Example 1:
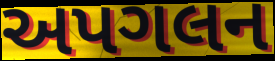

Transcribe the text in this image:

અપગલન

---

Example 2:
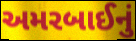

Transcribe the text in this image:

અમરબાઈનું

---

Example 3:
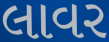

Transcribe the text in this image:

લાવર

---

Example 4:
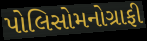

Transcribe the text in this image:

પોલિસોમનોગ્રાફી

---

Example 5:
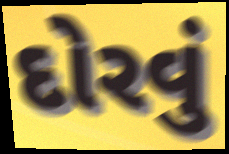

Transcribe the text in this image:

દોરવું